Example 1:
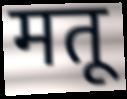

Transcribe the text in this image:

मतू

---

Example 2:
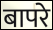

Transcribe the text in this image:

बापरे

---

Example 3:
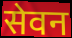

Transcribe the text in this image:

सेवन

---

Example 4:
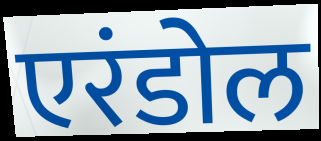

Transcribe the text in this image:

एरंडोल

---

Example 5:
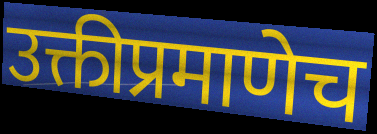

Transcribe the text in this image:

उक्तीप्रमाणेच